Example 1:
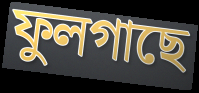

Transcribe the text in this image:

ফুলগাছে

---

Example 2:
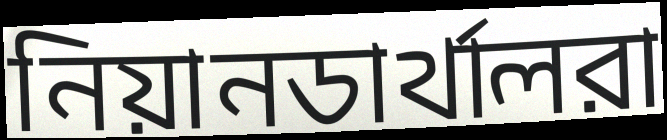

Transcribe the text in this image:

নিয়ানডার্থালরা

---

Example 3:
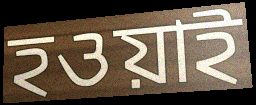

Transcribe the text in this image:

হওয়াই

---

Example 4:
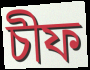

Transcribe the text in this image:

চীফ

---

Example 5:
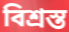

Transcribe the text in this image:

বিশ্রস্ত